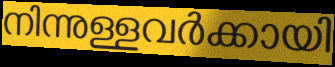
നിന്നുള്ളവർക്കായി